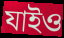
যাইও